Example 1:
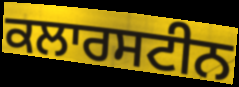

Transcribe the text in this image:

ਕਲਾਰਸਟੀਨ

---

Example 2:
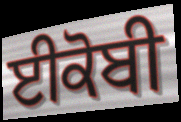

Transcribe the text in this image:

ਈਕੋਬੀ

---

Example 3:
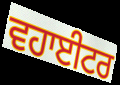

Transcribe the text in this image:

ਵਹਾਈਟਰ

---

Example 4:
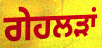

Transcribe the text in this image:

ਗੇਹਲੜਾਂ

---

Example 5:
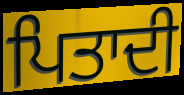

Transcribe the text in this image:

ਪਿਤਾਦੀ